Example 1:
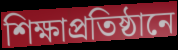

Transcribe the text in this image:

শিক্ষাপ্রতিষ্ঠানে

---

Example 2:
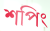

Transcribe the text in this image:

শপিং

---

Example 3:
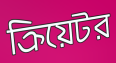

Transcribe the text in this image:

ক্রিয়েটর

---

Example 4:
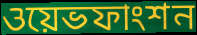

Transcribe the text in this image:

ওয়েভফাংশন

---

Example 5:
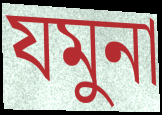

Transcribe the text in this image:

যমুনা